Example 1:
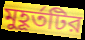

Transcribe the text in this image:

মুহূর্তটির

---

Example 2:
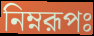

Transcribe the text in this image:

নিম্নরূপঃ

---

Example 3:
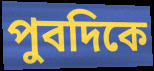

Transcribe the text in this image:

পুবদিকে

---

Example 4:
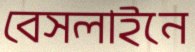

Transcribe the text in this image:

বেসলাইনে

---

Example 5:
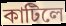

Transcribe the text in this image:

কাটিলে